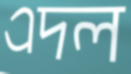
এদল